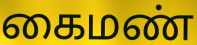
கைமண்